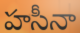
హసీనా